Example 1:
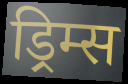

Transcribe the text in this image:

ड्रिम्स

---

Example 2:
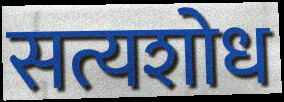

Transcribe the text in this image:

सत्यशोध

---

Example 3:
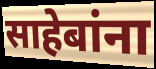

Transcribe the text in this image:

साहेबांना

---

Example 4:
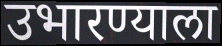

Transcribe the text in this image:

उभारण्याला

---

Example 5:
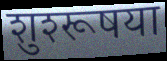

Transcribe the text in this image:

शुश्रूषया